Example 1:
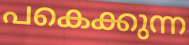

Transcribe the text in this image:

പകെക്കുന്ന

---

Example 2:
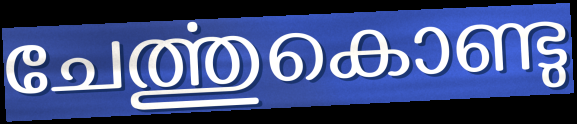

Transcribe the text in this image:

ചേൎത്തുകൊണ്ടു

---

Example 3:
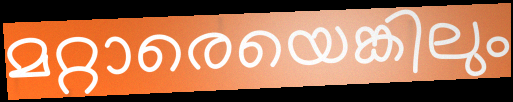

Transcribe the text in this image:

മറ്റാരെയെങ്കിലും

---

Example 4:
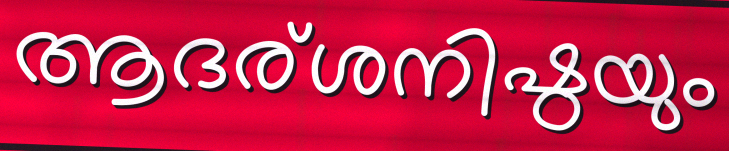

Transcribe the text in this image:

ആദര്ശനിഷ്ഠയും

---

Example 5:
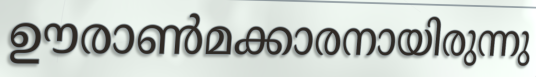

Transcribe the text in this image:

ഊരാൺമക്കാരനായിരുന്നു